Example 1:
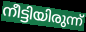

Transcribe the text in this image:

നീട്ടിയിരുന്ന്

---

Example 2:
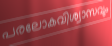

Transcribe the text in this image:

പരലോകവിശ്വാസവും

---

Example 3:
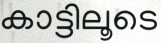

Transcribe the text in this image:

കാട്ടിലൂടെ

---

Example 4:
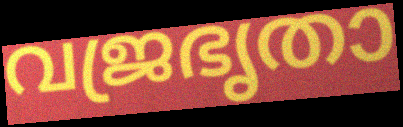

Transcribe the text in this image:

വജ്രഭൃതാ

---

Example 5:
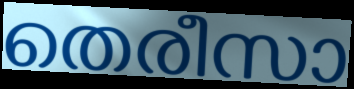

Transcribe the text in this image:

തെരീസാ